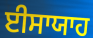
ਈਸਾਯਾਹ